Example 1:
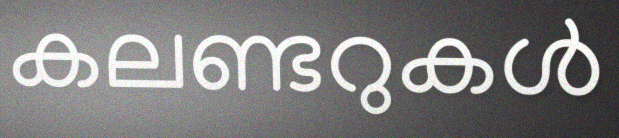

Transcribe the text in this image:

കലണ്ടറുകൾ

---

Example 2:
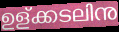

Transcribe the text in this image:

ഉള്ക്കടലിനു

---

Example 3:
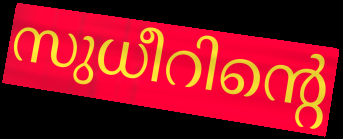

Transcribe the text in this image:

സുധീറിന്റെ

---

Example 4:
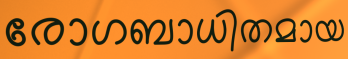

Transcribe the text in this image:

രോഗബാധിതമായ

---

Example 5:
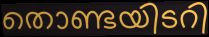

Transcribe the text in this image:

തൊണ്ടയിടറി